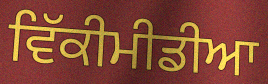
ਵਿੱਕੀਮੀਡੀਆ